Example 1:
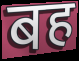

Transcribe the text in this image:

बह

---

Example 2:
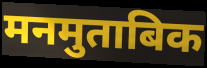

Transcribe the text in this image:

मनमुताबिक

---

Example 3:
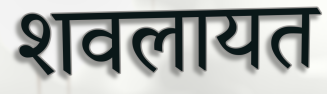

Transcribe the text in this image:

शवलायत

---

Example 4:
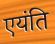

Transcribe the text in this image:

एयंति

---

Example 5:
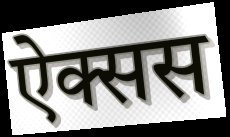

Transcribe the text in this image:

ऐक्सस